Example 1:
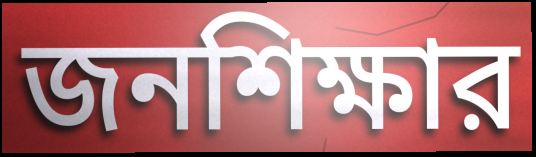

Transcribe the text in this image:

জনশিক্ষার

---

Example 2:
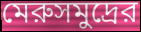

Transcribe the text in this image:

মেরুসমুদ্রের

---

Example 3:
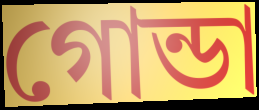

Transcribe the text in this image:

গোন্ডা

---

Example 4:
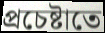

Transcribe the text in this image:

প্রচেষ্টাতে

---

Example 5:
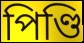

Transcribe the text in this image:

পিণ্ডি